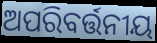
ଅପରିବର୍ତ୍ତନୀୟ